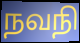
நவநி